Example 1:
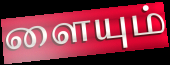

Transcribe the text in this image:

ளையும்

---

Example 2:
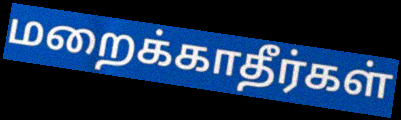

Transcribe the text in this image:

மறைக்காதீர்கள்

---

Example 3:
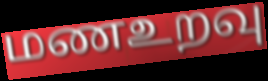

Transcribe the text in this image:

மணஉறவு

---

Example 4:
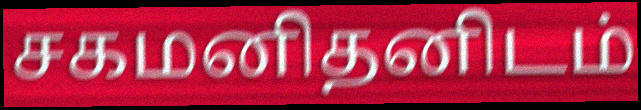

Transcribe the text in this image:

சகமனிதனிடம்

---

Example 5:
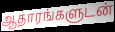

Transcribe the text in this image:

ஆதாரங்களுடன்